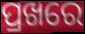
ପ୍ରଖରେ